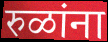
रुळांना